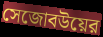
সেজোবউয়ের